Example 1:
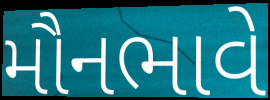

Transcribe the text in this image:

મૌનભાવે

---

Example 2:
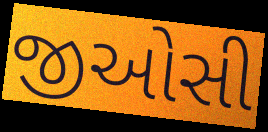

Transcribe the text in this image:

જીઓસી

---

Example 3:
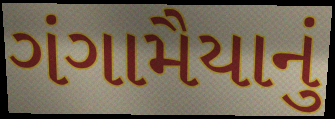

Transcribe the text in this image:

ગંગામૈયાનું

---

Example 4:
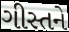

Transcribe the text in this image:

ગીસ્તને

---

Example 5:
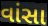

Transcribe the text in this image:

વાંસા